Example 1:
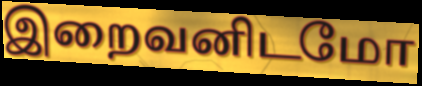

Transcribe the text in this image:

இறைவனிடமோ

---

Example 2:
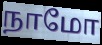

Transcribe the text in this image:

நாமோ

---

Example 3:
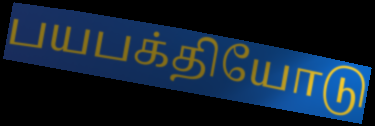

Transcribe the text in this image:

பயபக்தியோடு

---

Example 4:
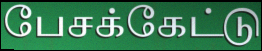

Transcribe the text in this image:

பேசக்கேட்டு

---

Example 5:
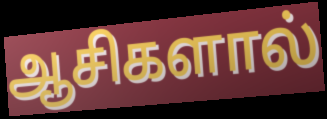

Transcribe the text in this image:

ஆசிகளால்